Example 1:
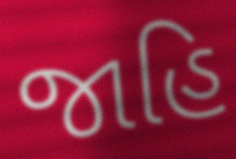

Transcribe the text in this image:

જાહિ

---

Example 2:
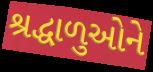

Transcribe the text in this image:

શ્રદ્ધાળુઓને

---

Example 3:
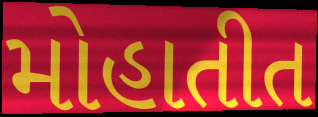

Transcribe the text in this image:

મોહાતીત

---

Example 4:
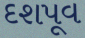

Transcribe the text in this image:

દશપૂવ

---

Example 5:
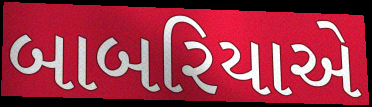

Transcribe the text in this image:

બાબરિયાએ